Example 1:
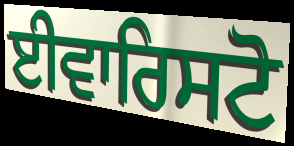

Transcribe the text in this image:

ਈਵਾਰਿਸਟੋ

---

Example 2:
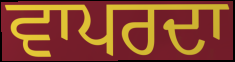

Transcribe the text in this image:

ਵਾਪਰਦਾ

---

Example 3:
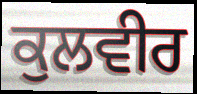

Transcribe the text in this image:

ਕੁਲਵੀਰ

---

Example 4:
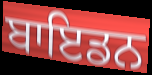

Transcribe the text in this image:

ਬਾਇਡਨ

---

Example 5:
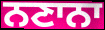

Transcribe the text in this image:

ਨਣਾਨਾ